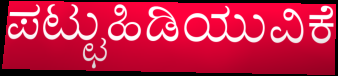
ಪಟ್ಟುಹಿಡಿಯುವಿಕೆ